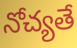
నోచ్యతే